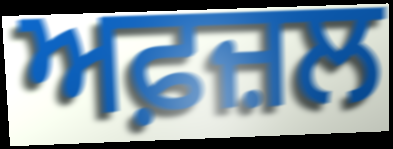
ਅਫ਼ਜ਼ਲ